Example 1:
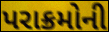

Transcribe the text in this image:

પરાક્રમોની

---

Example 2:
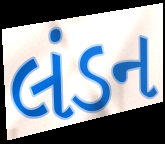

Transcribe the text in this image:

લંડન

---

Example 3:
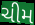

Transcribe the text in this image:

ચીમ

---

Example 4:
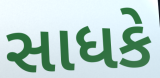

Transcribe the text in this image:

સાધકે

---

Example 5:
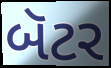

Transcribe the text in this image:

બૅટર